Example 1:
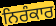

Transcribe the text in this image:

ਨਿਰੰਕਾਰ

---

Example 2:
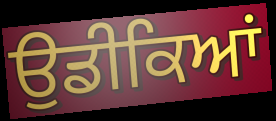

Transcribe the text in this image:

ਉਡੀਕਿਆਂ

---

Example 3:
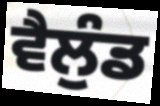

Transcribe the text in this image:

ਵੈਲੁੰਡ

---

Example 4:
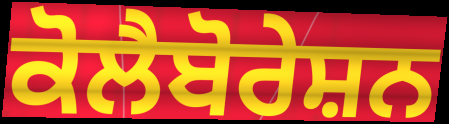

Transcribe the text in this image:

ਕੋਲੈਬੋਰੇਸ਼ਨ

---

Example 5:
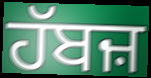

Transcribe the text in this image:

ਹੱਬਜ਼